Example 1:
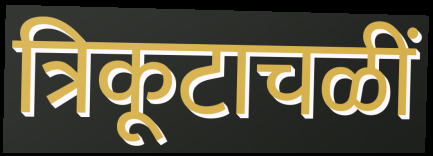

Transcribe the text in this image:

त्रिकूटाचळीं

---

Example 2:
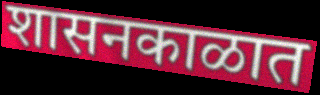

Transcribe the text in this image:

शासनकाळात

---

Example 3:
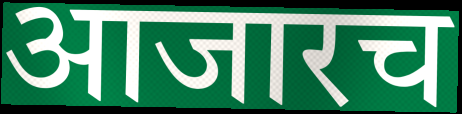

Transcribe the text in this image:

आजारच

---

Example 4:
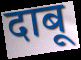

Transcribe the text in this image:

दाबू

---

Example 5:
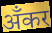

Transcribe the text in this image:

अँकर